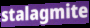
stalagmite